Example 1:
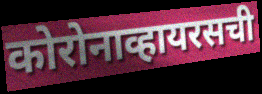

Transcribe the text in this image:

कोरोनाव्हायरसची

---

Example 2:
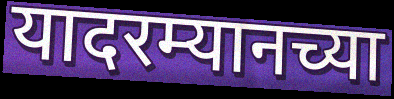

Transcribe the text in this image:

यादरम्यानच्या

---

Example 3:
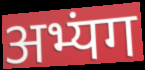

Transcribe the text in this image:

अभ्यंग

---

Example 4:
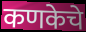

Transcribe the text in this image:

कणकेचे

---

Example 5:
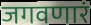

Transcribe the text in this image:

जगवणारं